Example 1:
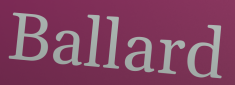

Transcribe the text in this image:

Ballard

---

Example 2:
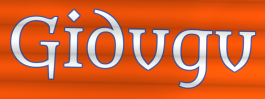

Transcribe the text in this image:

Gidugu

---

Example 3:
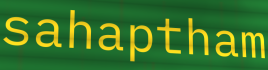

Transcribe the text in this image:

sahaptham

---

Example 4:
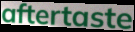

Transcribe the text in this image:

aftertaste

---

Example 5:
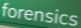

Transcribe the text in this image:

forensics